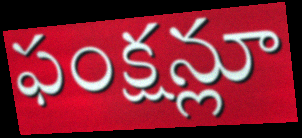
ఫంక్షన్లూ